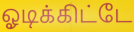
ஓடிக்கிட்டே